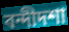
বন্দীদশা